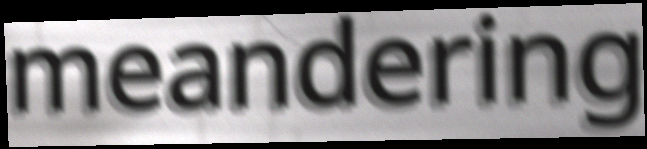
meandering